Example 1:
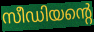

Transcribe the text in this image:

സീഡിയന്റെ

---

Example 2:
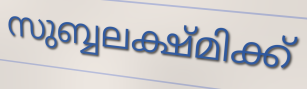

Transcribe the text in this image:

സുബ്ബലക്ഷ്മിക്ക്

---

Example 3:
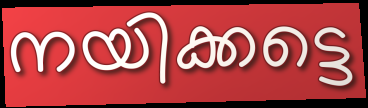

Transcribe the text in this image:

നയിക്കട്ടെ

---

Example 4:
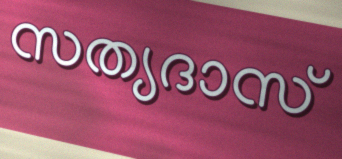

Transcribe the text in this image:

സത്യദാസ്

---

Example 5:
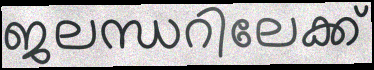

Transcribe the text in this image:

ജലന്ധറിലേക്ക്